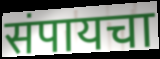
संपायचा